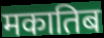
मकातिब